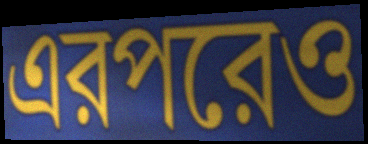
এরপরেও